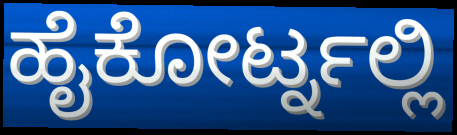
ಹೈಕೋರ್ಟ್ನಲ್ಲಿ